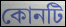
কোনটি